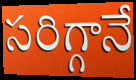
సరిగ్గానే